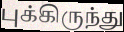
புக்கிருந்து